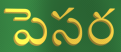
పెసర